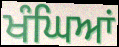
ਖੰਘਿਆਂ